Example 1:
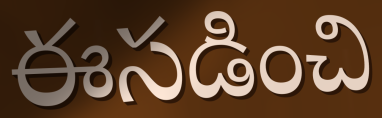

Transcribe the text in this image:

ఈసడించి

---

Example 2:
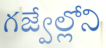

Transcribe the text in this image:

గజ్వేల్లోని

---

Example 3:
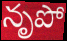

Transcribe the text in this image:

నృపో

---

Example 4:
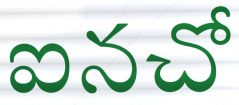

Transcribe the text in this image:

ఐనచో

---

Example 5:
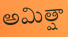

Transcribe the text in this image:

అమిత్షా